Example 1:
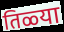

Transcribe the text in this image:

तिळ्या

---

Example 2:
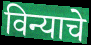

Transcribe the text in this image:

विन्याचे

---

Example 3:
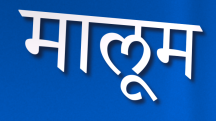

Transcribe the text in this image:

मालूम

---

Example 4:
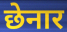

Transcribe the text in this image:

छेनार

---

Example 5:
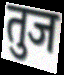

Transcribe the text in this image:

तुज